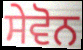
ਸੇਵੋਨ